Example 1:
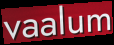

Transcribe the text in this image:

vaalum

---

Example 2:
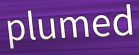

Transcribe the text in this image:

plumed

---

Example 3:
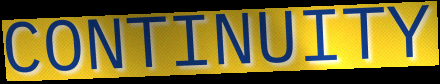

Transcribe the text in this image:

CONTINUITY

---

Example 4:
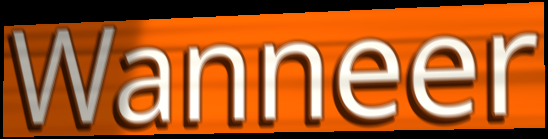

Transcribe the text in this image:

Wanneer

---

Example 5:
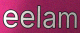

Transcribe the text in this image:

eelam